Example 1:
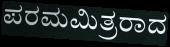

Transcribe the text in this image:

ಪರಮಮಿತ್ರರಾದ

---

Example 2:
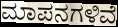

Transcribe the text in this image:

ಮಾಪನಗಳಿವೆ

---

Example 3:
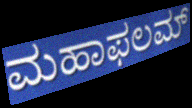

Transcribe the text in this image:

ಮಹಾಫಲಮ್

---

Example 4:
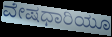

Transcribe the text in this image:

ವೇಷಧಾರಿಯೂ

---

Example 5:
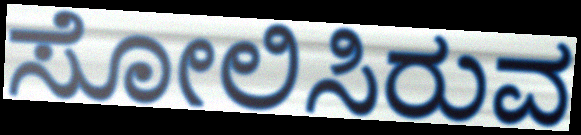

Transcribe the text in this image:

ಸೋಲಿಸಿರುವ